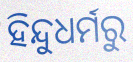
ହିନ୍ଦୁଧର୍ମରୁ